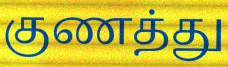
குணத்து